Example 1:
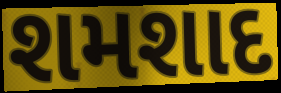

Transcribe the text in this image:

શમશાદ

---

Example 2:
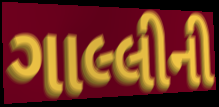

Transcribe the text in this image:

ગાલ્લીની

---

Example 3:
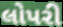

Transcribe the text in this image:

લોપરી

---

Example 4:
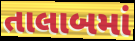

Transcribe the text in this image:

તાલાબમાં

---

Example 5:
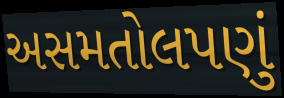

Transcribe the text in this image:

અસમતોલપણું